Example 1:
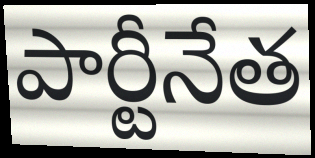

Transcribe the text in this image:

పార్టీనేత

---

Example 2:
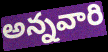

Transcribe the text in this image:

అన్నవారి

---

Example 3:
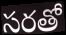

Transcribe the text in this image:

సరతో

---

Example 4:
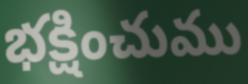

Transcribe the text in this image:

భక్షించుము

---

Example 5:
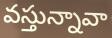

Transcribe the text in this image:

వస్తున్నావా